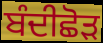
ਬੰਦੀਛੋੜ